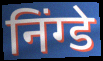
निंग्डे